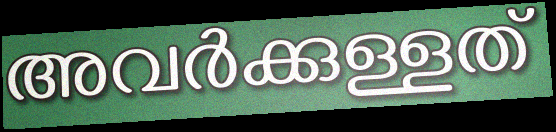
അവർക്കുള്ളത്